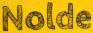
Nolde